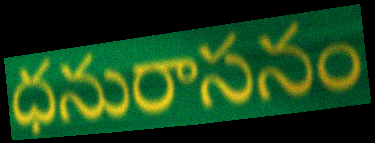
ధనురాసనం